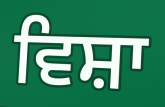
ਵਿਸ਼ਾ